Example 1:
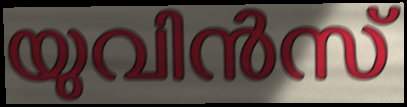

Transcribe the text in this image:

യുവിൻസ്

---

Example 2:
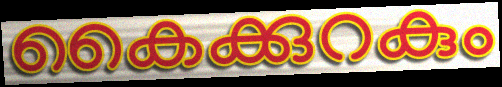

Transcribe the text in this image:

കൈക്കുറകും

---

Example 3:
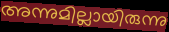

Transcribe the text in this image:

അന്നുമില്ലായിരുന്നു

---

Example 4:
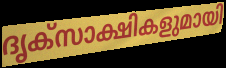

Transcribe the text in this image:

ദൃക്സാക്ഷികളുമായി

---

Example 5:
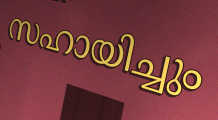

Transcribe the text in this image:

സഹായിച്ചും